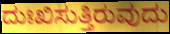
ದುಃಖಿಸುತ್ತಿರುವುದು